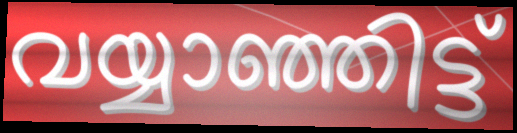
വയ്യാഞ്ഞിട്ട്